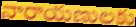
నారాయణులకు